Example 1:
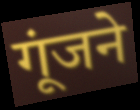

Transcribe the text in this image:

गूंजने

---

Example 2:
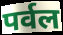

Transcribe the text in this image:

पर्वल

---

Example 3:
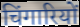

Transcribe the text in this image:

चिंगारियों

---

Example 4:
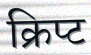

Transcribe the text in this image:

क्रिप्ट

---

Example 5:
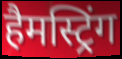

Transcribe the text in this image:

हैमस्ट्रिंग